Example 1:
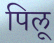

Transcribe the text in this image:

पिलू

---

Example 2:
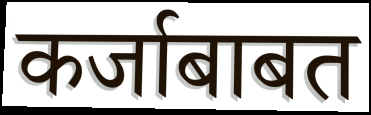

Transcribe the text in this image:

कर्जाबाबत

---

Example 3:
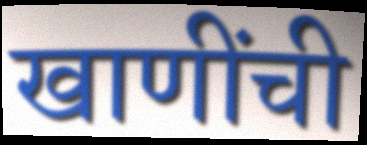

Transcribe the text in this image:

खाणींची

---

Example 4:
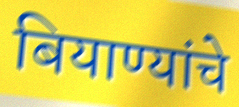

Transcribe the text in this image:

बियाण्यांचे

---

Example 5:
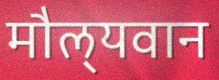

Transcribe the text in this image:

मौल्यवान